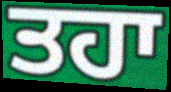
ਤਹਾ